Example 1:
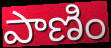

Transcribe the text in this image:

పాణిం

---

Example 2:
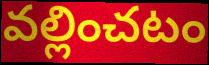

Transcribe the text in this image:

వల్లించటం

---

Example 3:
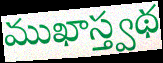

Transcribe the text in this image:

ముఖాస్త్వథ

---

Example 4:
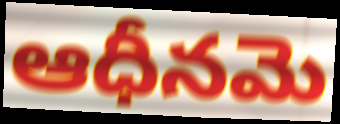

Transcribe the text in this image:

ఆధీనమె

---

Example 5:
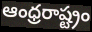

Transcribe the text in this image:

ఆంధ్రరాష్ట్రం